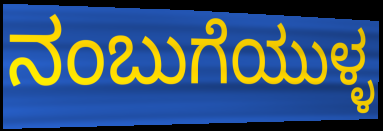
ನಂಬುಗೆಯುಳ್ಳ